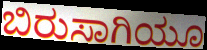
ಬಿರುಸಾಗಿಯೂ